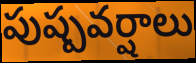
పుష్పవర్షాలు